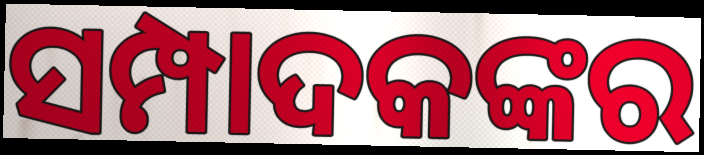
ସମ୍ପାଦକଙ୍କର